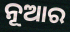
ନୂଆର